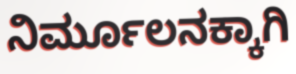
ನಿರ್ಮೂಲನಕ್ಕಾಗಿ